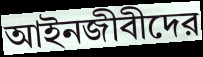
আইনজীবীদের